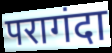
परागंदा